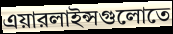
এয়ারলাইন্সগুলোতে